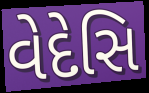
વેદેસિ